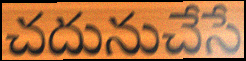
చదునుచేసే